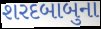
શરદબાબુના